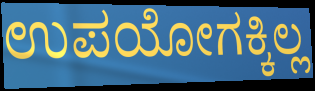
ಉಪಯೋಗಕ್ಕಿಲ್ಲ